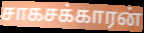
சாகசக்காரன்